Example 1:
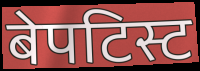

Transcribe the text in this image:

बेपटिस्ट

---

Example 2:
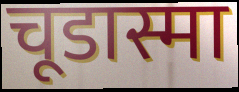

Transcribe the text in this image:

चूडास्मा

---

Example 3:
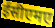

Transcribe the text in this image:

ईसीएमए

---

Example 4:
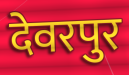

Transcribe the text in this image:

देवरपुर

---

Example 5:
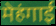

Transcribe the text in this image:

मेहंगाई